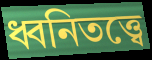
ধ্বনিতত্ত্বে